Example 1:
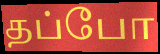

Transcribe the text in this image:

தப்போ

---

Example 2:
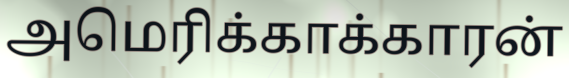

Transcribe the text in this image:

அமெரிக்காக்காரன்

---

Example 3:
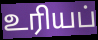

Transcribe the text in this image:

உரியப்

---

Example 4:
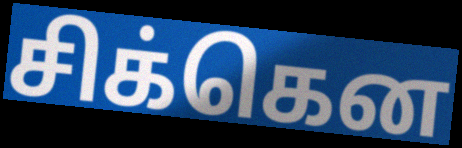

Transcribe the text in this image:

சிக்கென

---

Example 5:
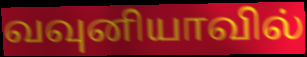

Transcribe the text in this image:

வவுனியாவில்